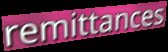
remittances